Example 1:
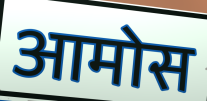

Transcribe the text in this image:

आमोस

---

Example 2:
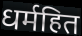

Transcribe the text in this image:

धर्महित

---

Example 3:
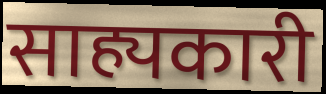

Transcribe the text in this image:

साह्यकारी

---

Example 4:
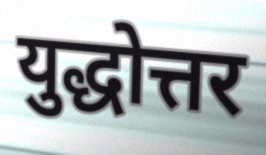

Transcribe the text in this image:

युद्धोत्तर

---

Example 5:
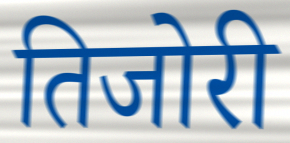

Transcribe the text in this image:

तिजोरी